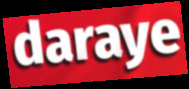
daraye